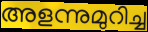
അളന്നുമുറിച്ച